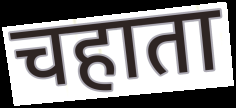
चहाता